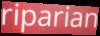
riparian